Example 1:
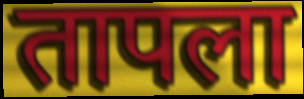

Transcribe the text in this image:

तापला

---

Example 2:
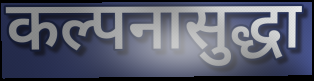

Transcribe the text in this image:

कल्पनासुद्धा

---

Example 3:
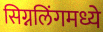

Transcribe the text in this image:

सिग्नलिंगमध्ये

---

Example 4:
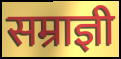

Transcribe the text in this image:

सम्राज्ञी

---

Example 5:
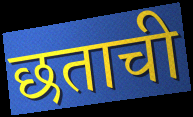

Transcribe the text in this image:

छताची